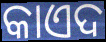
କାଏଦ